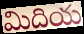
మిదియ